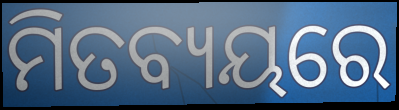
ମିତବ୍ୟୟରେ